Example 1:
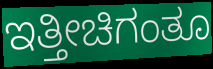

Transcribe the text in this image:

ಇತ್ತೀಚಿಗಂತೂ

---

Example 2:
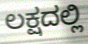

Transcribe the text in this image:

ಲಕ್ಷದಲ್ಲಿ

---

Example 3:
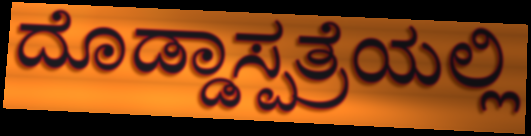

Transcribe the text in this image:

ದೊಡ್ಡಾಸ್ಪತ್ರೆಯಲ್ಲಿ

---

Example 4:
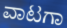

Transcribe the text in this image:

ವಾಟಗಾ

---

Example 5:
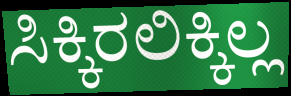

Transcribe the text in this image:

ಸಿಕ್ಕಿರಲಿಕ್ಕಿಲ್ಲ